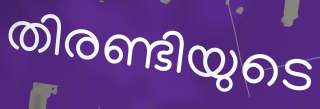
തിരണ്ടിയുടെ